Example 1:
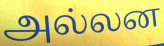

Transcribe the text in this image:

அல்லன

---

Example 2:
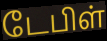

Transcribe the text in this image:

டேபிள்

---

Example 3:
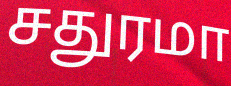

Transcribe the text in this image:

சதுரமா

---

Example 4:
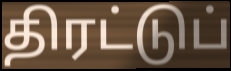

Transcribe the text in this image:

திரட்டுப்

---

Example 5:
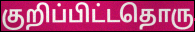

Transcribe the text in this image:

குறிப்பிட்டதொரு